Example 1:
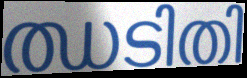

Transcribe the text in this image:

ഝടിതി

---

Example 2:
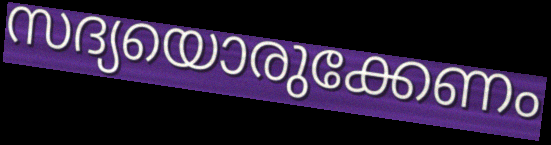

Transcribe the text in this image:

സദ്യയൊരുക്കേണം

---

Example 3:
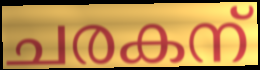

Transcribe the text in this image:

ചരകന്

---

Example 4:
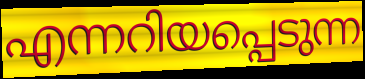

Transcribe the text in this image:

എന്നറിയപ്പെടുന്ന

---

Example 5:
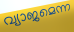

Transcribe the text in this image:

വ്യാജമെന്ന